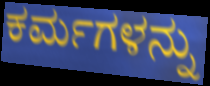
ಕರ್ಮಗಳನ್ನು